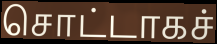
சொட்டாகச்